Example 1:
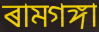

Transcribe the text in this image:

ৰামগঙ্গা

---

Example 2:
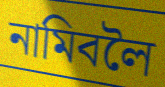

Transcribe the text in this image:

নামিবলৈ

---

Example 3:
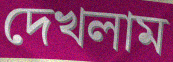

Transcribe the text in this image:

দেখলাম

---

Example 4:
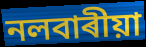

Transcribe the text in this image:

নলবাৰীয়া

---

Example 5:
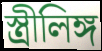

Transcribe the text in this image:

স্ত্ৰীলিঙ্গ